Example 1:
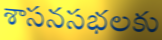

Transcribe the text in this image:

శాసనసభలకు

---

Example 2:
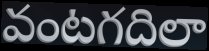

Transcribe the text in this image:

వంటగదిలా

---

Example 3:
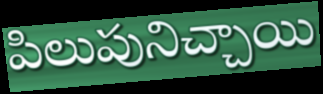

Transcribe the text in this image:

పిలుపునిచ్చాయి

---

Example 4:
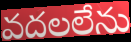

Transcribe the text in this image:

వదలలేను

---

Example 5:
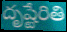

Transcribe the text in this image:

దృష్టేరితి